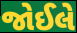
જોઈલે